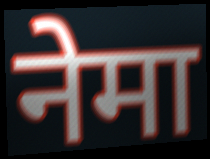
नेमा